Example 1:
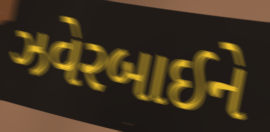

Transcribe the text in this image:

ઝવેરબાઈને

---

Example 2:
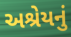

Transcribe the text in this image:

અશ્રેયનું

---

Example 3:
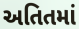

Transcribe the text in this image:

અતિતમાં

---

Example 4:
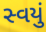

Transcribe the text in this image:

સ્વયું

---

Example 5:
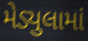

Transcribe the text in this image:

મેડ્યુલામાં